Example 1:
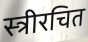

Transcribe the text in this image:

स्त्रीरचित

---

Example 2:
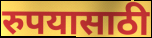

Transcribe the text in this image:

रुपयासाठी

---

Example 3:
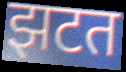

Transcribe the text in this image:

झटत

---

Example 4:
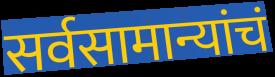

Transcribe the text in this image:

सर्वसामान्यांचं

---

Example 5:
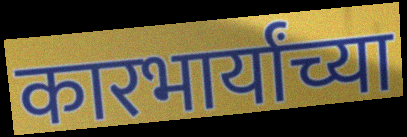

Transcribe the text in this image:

कारभार्यांच्या